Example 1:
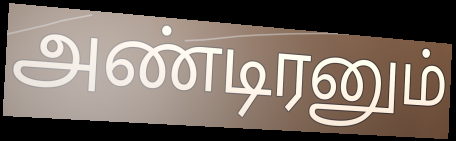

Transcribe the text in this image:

அண்டிரனும்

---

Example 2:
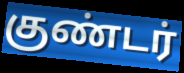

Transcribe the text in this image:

குண்டர்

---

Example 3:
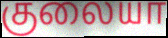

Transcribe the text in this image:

குலையா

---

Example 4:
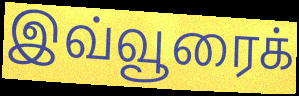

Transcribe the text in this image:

இவ்வூரைக்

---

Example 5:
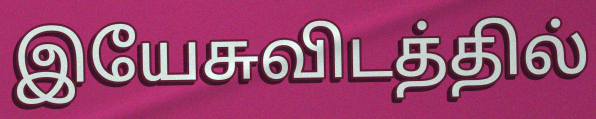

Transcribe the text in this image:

இயேசுவிடத்தில்